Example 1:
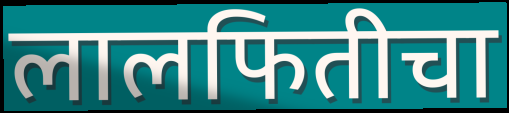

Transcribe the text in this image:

लालफितीचा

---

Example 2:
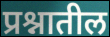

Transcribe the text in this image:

प्रश्नातील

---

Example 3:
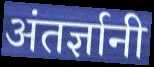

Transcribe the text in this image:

अंतर्ज्ञानी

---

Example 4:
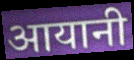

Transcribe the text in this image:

आयानी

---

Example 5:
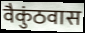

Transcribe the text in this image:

वैकुंठवास